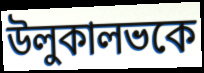
উলুকালভকে